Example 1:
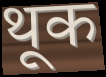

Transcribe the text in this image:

थूक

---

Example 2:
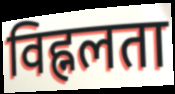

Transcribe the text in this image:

विह्नलता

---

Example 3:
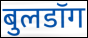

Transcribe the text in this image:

बुलडॉग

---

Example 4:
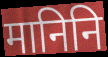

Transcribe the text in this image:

मानिनि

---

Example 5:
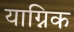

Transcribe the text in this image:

याग्निक